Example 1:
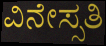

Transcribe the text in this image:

ವಿನೇಸ್ಸತಿ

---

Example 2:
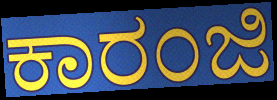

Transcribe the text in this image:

ಕಾರಂಜಿ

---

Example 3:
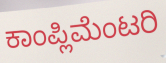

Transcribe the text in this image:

ಕಾಂಪ್ಲಿಮೆಂಟರಿ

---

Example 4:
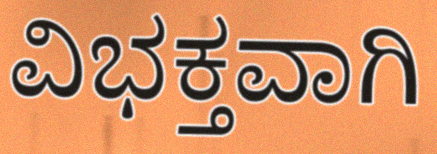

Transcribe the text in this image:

ವಿಭಕ್ತವಾಗಿ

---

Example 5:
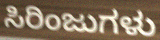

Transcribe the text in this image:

ಸಿರಿಂಜುಗಳು